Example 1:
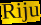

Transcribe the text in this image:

Riju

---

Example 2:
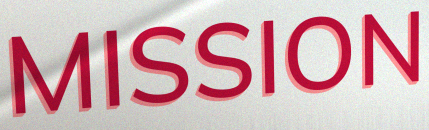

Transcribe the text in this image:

MISSION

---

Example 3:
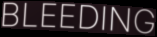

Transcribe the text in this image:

BLEEDING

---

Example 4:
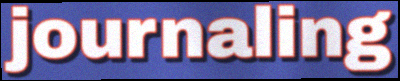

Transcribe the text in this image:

journaling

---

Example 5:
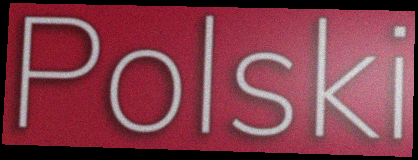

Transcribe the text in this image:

Polski